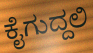
ಕೈಗುದ್ದಲಿ